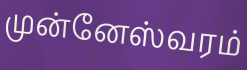
முன்னேஸ்வரம்